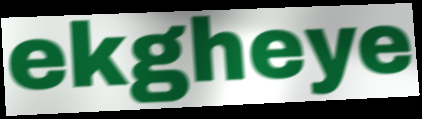
ekgheye